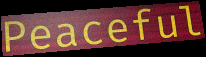
Peaceful